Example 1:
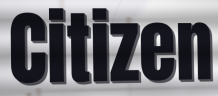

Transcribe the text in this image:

Citizen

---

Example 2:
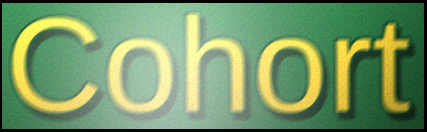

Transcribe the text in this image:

Cohort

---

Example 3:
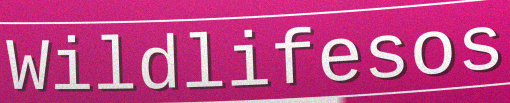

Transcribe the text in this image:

Wildlifesos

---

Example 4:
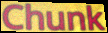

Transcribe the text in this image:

Chunk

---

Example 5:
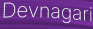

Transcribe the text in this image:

Devnagari